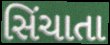
સિંચાતા